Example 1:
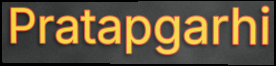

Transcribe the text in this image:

Pratapgarhi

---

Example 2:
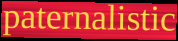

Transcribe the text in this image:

paternalistic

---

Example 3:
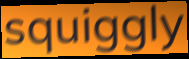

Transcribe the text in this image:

squiggly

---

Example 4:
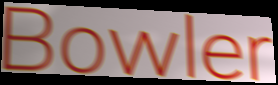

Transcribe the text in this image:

Bowler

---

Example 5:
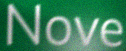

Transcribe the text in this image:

Nove